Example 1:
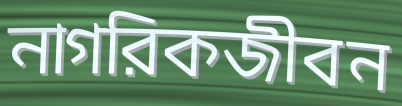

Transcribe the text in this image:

নাগরিকজীবন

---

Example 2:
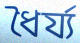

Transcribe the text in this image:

ধৈর্য্য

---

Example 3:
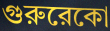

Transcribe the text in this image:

গুরুরেকো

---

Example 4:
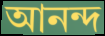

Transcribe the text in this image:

আনন্দ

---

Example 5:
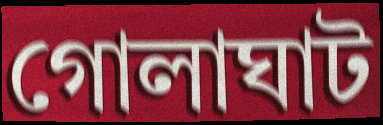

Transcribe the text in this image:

গোলাঘাট